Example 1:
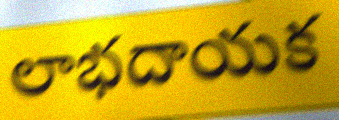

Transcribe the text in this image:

లాభదాయక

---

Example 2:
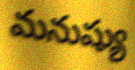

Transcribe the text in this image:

మనుష్యు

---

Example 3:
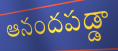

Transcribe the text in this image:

ఆనందపడ్డా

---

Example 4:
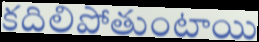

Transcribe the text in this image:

కదిలిపోతుంటాయి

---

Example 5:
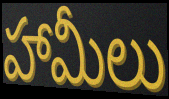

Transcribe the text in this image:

హామీలు